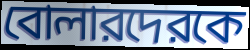
বোলারদেরকে